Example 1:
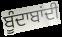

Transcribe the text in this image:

ਬੂੰਦਾਬਾਂਦੀ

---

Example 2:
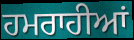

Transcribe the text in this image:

ਹਮਰਾਹੀਆਂ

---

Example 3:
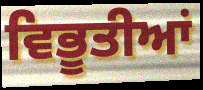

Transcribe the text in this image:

ਵਿਭੂਤੀਆਂ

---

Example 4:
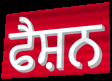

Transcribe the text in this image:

ਫੈਸ਼ਨ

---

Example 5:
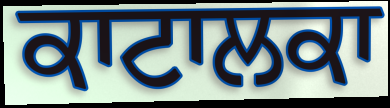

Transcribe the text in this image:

ਕਾਟਾਲਕਾ